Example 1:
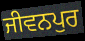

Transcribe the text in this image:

ਜੀਵਨਪੁਰ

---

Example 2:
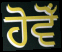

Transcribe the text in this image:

ਹੋਵੋਁ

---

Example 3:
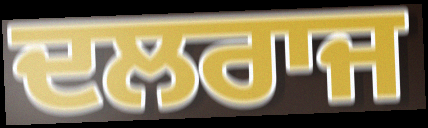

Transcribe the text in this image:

ਦਲਰਾਜ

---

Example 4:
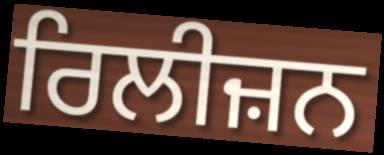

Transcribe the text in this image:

ਰਿਲੀਜ਼ਨ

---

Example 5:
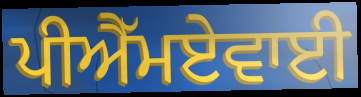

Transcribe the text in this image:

ਪੀਐੱਮਏਵਾਈ